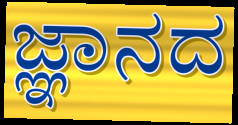
ಜ್ಞಾನದ